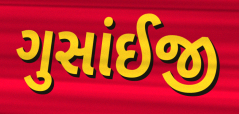
ગુસાંઈજી